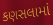
કણસલામાં